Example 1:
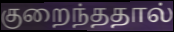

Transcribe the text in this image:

குறைந்ததால்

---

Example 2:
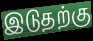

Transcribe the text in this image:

இடுதற்கு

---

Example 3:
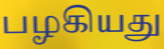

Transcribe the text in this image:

பழகியது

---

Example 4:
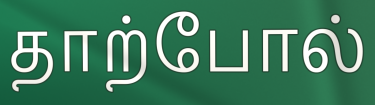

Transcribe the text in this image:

தாற்போல்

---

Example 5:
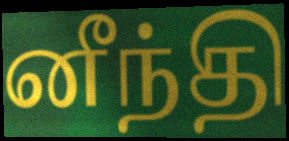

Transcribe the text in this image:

னீந்தி